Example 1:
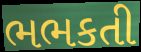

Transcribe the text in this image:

ભભકતી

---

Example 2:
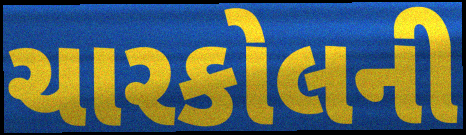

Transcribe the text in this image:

ચારકોલની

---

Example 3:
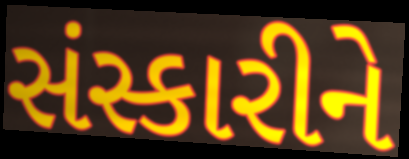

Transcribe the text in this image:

સંસ્કારીને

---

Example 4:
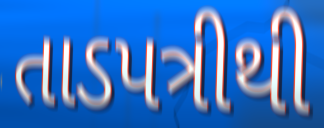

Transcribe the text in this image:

તાડપત્રીથી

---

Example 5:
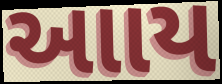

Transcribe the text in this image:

આાય